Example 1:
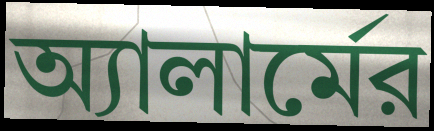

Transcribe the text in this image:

অ্যালার্মের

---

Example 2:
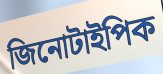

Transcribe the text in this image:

জিনোটাইপিক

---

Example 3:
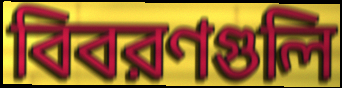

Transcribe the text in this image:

বিবরণগুলি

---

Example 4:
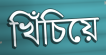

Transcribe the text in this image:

খিঁচিয়ে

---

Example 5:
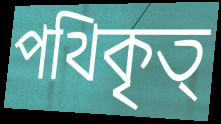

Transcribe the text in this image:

পথিকৃত্